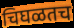
चिघळतच